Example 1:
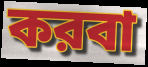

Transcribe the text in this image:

করবা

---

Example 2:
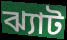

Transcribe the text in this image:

ঝ্যাট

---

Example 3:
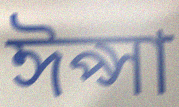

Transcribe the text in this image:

ঈপ্সা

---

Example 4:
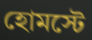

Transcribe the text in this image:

হোমস্টে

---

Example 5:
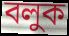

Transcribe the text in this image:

বলুক